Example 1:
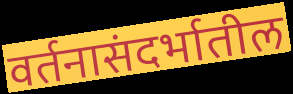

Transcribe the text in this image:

वर्तनासंदर्भातील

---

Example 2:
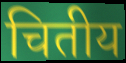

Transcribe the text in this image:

चितीय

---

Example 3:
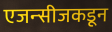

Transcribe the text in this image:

एजन्सीजकडून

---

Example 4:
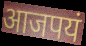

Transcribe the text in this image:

आजपयं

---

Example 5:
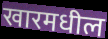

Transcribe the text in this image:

खारमधील